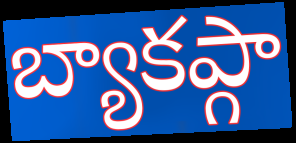
బ్యాకప్గా